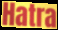
Hatra